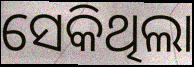
ସେକିଥିଲା